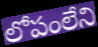
లోపంలేని